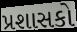
પ્રશાસકો